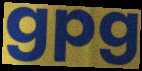
gpg